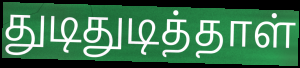
துடிதுடித்தாள்